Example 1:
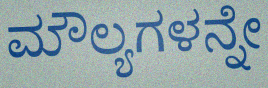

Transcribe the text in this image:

ಮೌಲ್ಯಗಳನ್ನೇ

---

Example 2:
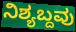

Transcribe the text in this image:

ನಿಶ್ಯಬ್ದವು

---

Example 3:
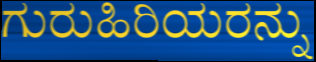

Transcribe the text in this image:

ಗುರುಹಿರಿಯರನ್ನು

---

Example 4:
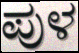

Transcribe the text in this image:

ಪುಳ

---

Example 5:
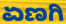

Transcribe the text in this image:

ಏಣಗಿ